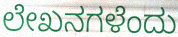
ಲೇಖನಗಳೆಂದು